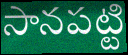
సానపట్టి